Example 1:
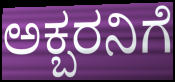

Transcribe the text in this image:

ಅಕ್ಬರನಿಗೆ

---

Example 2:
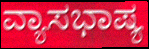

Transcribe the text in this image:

ವ್ಯಾಸಭಾಷ್ಯ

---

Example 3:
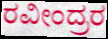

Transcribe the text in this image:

ರವೀಂದ್ರರ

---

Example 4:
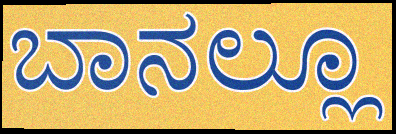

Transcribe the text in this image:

ಬಾನಲ್ಲೂ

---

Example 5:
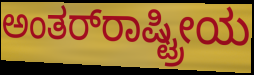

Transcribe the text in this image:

ಅಂತರ್‌ರಾಷ್ಟ್ರೀಯ